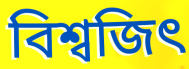
বিশ্বজিৎ